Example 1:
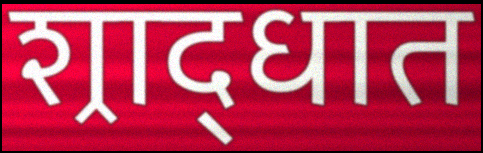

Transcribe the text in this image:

श्राद्धात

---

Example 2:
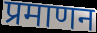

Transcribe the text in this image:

प्रमाणन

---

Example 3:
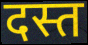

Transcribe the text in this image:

दस्त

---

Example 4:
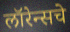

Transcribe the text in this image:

लॉरेन्सचे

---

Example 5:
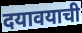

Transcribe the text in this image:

दयावयाची